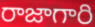
రాజాగారి